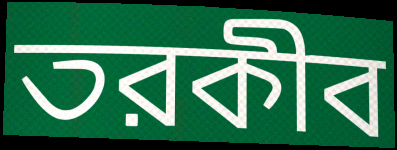
তরকীব